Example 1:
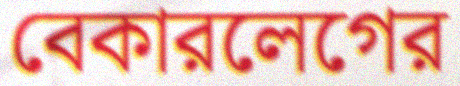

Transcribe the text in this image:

বেকারলেগের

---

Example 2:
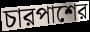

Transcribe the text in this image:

চারপাশের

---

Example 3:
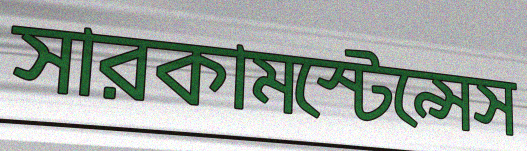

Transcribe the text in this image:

সারকামস্টেন্সেস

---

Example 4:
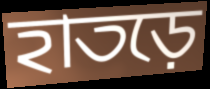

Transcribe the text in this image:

হাতড়ে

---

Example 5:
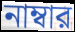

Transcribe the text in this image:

নাম্বার